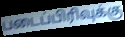
படைப்பிரிவுக்கு